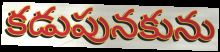
కడుపునకును